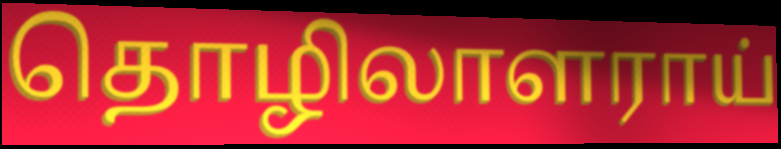
தொழிலாளராய்